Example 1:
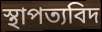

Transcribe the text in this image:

স্থাপত্যবিদ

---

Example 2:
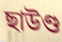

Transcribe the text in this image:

ছাউণ্ড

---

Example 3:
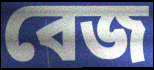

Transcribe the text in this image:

বেজ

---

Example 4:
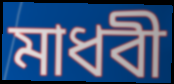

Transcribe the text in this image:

মাধবী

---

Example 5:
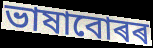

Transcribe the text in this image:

ভাষাবোৰৰ